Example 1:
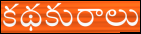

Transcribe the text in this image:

కథకురాలు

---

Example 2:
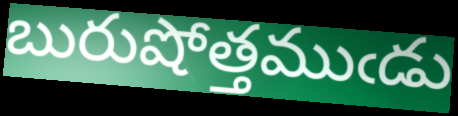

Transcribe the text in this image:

బురుషోత్తముఁడు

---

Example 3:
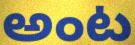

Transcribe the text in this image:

అంట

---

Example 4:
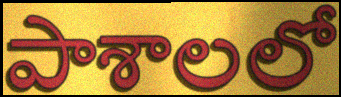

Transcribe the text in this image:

పాశాలలో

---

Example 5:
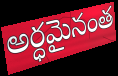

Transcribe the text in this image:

అర్ధమైనంత